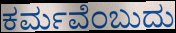
ಕರ್ಮವೆಂಬುದು